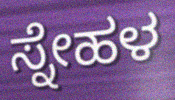
ಸ್ನೇಹಳ